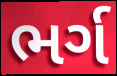
ભર્ગ